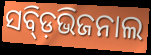
ସବ୍ଡ଼ିଭିଜନାଲ